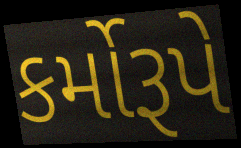
કર્મોરૂપે